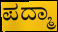
ಪದ್ಮಾ